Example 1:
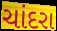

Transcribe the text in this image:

ચાંદરા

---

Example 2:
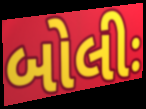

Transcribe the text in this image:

બોલીઃ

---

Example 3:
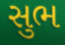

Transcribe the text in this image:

સુભ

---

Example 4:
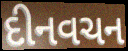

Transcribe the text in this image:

દીનવચન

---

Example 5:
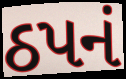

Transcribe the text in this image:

ઠપનં